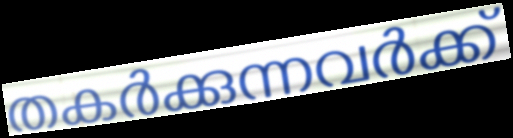
തകർക്കുന്നവർക്ക്